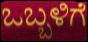
ಒಬ್ಬಳಿಗೆ